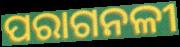
ପରାଗନଳୀ